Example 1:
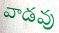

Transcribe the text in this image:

వాడవు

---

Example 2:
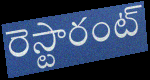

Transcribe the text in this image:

రెస్టారంట్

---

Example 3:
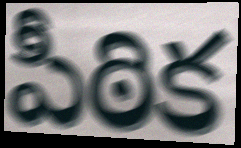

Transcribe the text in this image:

పీఠిక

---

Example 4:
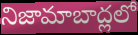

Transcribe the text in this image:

నిజామాబాద్లలో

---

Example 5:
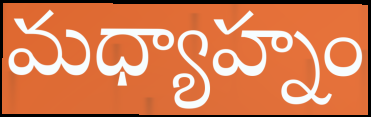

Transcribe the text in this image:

మధ్యాహ్నం